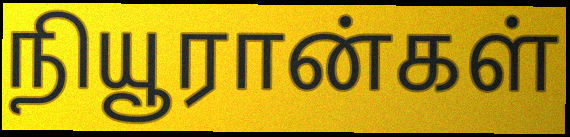
நியூரான்கள்